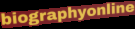
biographyonline